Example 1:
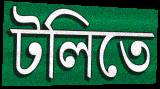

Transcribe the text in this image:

টলিতে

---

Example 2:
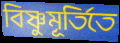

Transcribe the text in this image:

বিষ্ণুমূর্তিতে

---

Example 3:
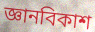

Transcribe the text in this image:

জ্ঞানবিকাশ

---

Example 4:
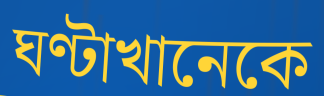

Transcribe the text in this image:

ঘণ্টাখানেকে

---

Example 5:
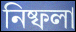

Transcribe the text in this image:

নিষ্ফলা